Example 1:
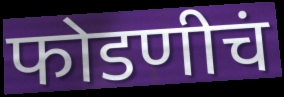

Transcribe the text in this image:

फोडणीचं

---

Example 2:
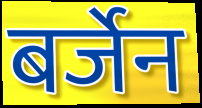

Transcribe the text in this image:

बर्जेन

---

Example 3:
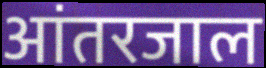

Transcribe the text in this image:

आंतरजाल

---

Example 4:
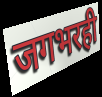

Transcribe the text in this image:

जगभरही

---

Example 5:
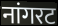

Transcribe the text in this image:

नांगरट